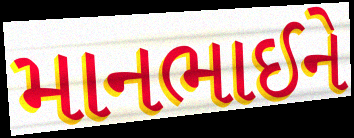
માનભાઈને